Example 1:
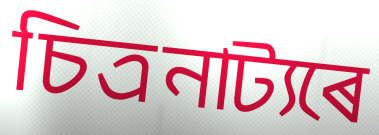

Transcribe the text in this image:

চিত্ৰনাট্যৰে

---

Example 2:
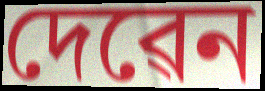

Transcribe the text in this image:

দেৱেন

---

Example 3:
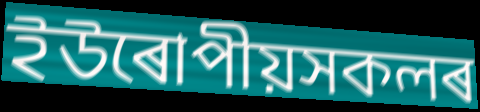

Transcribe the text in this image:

ইউৰোপীয়সকলৰ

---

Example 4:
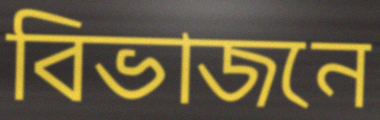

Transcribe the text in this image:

বিভাজনে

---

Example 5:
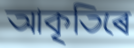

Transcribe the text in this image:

আকৃতিৰে